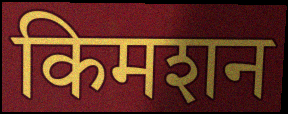
किमशन